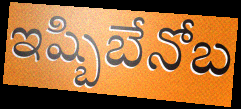
ఇష్బిబేనోబ